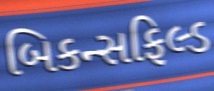
બિકન્સફિલ્ડ